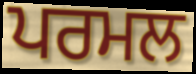
ਪਰਮਲ